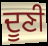
ਦੂਣੀ